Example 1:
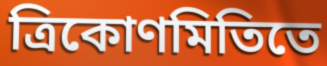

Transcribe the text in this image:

ত্রিকোণমিতিতে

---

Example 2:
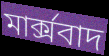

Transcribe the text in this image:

মার্ক্সবাদ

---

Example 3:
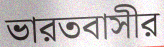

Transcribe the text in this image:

ভারতবাসীর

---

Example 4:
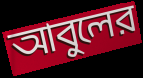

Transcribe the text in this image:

আবুলের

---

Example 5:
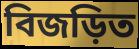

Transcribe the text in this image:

বিজড়িত